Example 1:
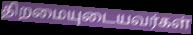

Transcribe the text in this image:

திறமையுடையவர்கள்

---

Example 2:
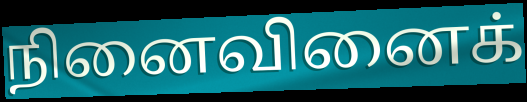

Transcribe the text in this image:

நினைவினைக்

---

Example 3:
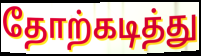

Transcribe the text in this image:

தோற்கடித்து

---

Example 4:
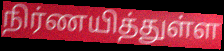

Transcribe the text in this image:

நிர்ணயித்துள்ள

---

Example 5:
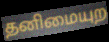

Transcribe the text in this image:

தனிமையுற